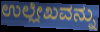
ಉಲ್ಲೇಖವನ್ನು